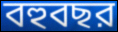
বহুবছর